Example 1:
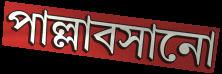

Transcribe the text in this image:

পাল্লাবসানো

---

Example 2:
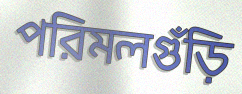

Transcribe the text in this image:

পরিমলগুঁড়ি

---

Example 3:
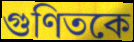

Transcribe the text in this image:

গুণিতকে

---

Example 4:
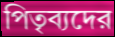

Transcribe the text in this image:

পিতৃব্যদের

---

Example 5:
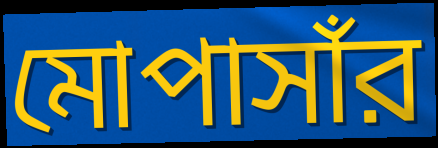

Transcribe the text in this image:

মোপাসাঁর